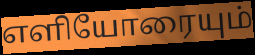
எளியோரையும்